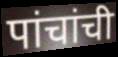
पांचांची